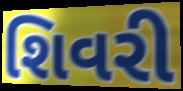
શિવરી